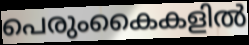
പെരുംകൈകളിൽ